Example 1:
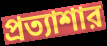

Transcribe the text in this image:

প্রত্যাশার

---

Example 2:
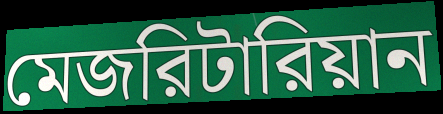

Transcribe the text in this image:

মেজরিটারিয়ান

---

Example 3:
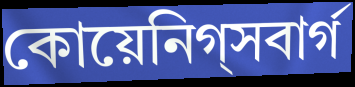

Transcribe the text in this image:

কোয়েনিগ্সবার্গ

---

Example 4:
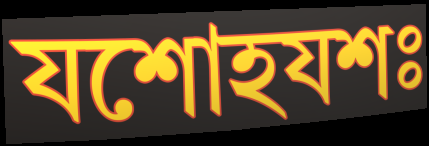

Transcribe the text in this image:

যশোহযশঃ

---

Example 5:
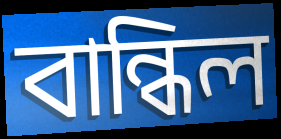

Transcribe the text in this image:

বান্ধিল